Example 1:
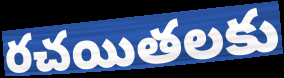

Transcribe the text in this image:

రచయితలకు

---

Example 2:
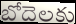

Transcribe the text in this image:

బోదెలకు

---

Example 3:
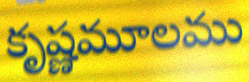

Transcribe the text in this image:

కృష్ణమూలము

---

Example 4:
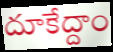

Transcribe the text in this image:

దూకేద్దాం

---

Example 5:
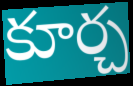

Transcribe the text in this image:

కూర్చ